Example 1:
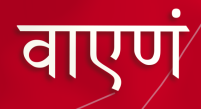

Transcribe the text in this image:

वाएणं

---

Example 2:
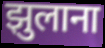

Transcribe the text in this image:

झुलाना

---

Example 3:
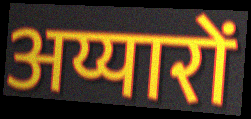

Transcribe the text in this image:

अय्यारों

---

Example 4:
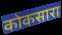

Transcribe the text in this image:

कोकसारा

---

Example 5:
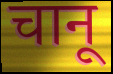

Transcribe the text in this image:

चानू